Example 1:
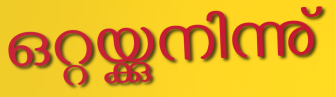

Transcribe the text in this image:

ഒറ്റയ്ക്കുനിന്നു്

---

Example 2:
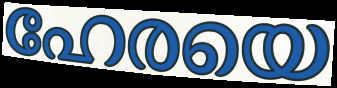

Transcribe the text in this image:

ഹേരയെ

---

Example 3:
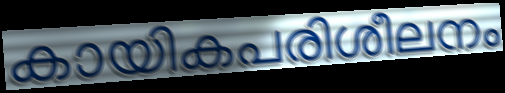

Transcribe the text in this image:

കായികപരിശീലനം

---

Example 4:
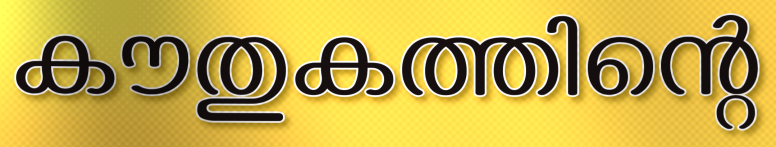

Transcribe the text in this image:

കൗതുകത്തിന്റെ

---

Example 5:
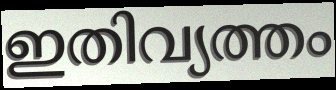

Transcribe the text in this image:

ഇതിവ്യത്തം